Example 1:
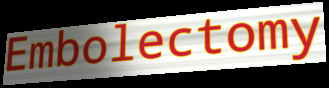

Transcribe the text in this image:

Embolectomy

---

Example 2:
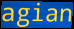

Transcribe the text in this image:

agian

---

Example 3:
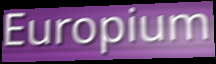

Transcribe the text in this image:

Europium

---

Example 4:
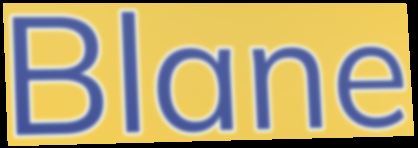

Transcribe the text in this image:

Blane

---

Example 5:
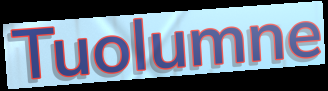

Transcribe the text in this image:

Tuolumne